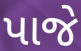
પાજે